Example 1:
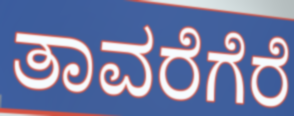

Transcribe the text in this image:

ತಾವರೆಗೆರೆ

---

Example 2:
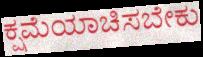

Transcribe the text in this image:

ಕ್ಷಮೆಯಾಚಿಸಬೇಕು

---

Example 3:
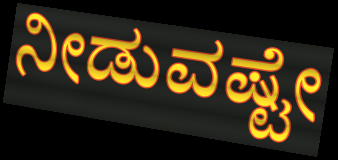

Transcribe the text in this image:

ನೀಡುವಷ್ಟೇ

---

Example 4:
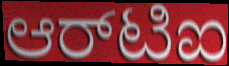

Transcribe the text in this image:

ಆರ್‌ಟಿಐ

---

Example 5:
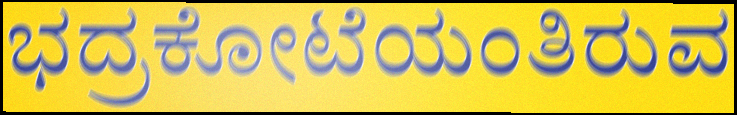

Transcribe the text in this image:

ಭದ್ರಕೋಟೆಯಂತಿರುವ